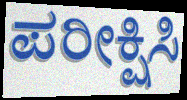
ಪರೀಕ್ಷಿಸಿ